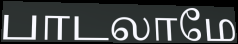
பாடலாமே